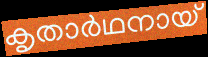
കൃതാർഥനായ്